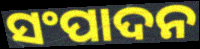
ସଂପାଦନ